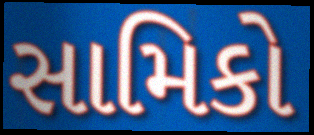
સામિકો